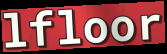
lfloor